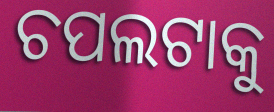
ଚପଲଟାକୁ